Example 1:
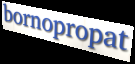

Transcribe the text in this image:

bornopropat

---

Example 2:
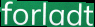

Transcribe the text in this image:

forladt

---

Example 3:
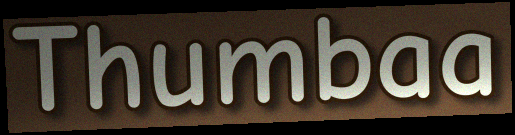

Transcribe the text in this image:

Thumbaa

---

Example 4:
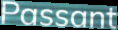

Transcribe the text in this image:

Passant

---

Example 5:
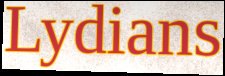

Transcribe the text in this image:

Lydians